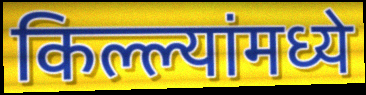
किल्ल्यांमध्ये